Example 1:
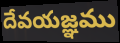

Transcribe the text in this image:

దేవయజ్ఞము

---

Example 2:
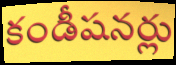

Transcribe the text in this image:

కండీషనర్లు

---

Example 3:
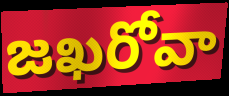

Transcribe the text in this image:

జఖరోవా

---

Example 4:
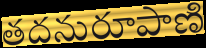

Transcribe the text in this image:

తదనురూపాణి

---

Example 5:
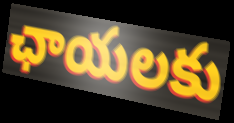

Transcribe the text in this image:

ఛాయలకు